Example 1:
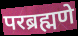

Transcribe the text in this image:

परब्रह्मणे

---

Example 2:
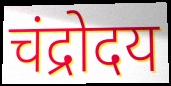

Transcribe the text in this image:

चंद्रोदय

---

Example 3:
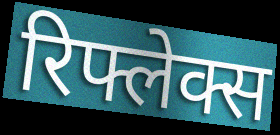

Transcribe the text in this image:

रिफ्लेक्स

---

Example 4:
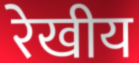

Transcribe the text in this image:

रेखीय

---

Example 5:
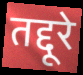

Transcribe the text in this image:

तद्दूरे